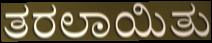
ತರಲಾಯಿತು